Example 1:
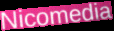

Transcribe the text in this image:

Nicomedia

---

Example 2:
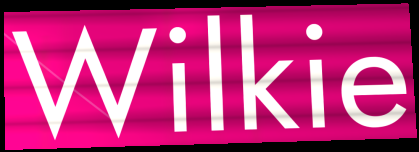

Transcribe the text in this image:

Wilkie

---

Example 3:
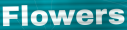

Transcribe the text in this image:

Flowers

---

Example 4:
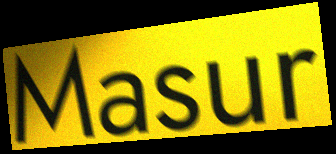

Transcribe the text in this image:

Masur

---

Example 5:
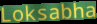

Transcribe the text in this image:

Loksabha